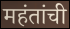
महंतांची